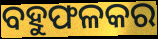
ବହୁଫଳକର